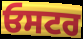
ਓਸਟਰ